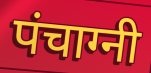
पंचाग्नी